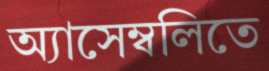
অ্যাসেম্বলিতে